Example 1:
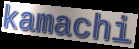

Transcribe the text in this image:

kamachi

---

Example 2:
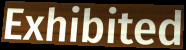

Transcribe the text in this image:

Exhibited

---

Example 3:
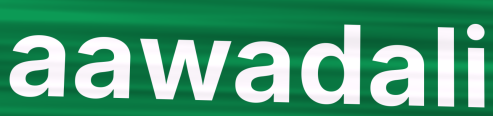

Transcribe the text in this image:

aawadali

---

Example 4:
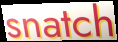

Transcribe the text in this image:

snatch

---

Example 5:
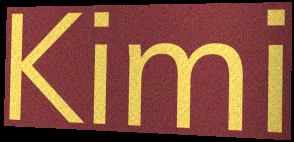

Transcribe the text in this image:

Kimi